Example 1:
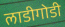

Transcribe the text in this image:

लाडीगोडी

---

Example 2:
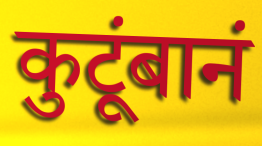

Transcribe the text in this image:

कुटूंबानं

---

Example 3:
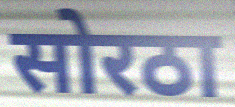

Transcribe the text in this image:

सोरठा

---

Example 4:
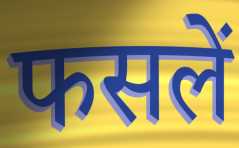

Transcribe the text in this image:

फसलें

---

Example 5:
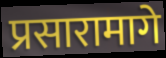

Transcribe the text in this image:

प्रसारामागे